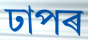
ঢাপৰ